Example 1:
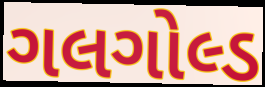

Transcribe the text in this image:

ગલગોલ્ડ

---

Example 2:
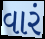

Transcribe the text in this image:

વારં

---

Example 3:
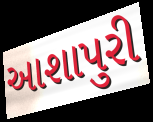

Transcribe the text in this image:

આશાપુરી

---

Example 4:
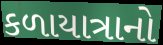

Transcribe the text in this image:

કળાયાત્રાનો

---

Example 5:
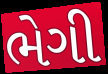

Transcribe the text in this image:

ભેગી